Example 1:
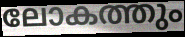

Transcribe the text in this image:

ലോകത്തും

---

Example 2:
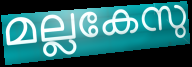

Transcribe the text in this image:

മല്ലകേസു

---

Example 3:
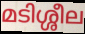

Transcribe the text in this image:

മടിശ്ശീല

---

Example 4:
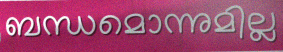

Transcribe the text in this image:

ബന്ധമൊന്നുമില്ല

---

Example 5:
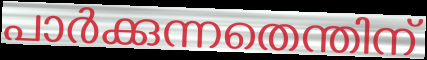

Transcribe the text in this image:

പാർക്കുന്നതെന്തിന്